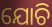
ଯୋଚି